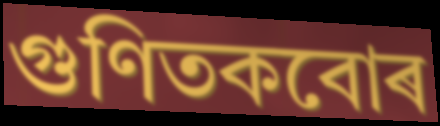
গুণিতকবোৰ